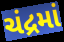
ચંદ્રમાં